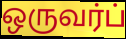
ஒருவர்ப்